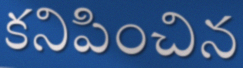
కనిపించిన